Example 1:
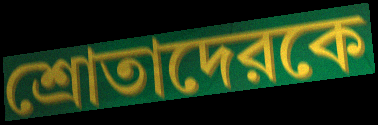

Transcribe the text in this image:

শ্রোতাদেরকে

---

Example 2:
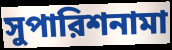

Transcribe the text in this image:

সুপারিশনামা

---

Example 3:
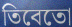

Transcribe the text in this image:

তিবেতো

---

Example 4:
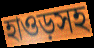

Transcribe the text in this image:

হাওড়সহ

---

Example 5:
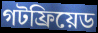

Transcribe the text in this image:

গটফ্রিয়েড